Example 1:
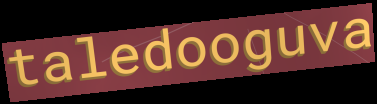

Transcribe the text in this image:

taledooguva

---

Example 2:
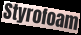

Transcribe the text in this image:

Styrofoam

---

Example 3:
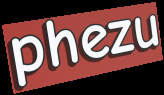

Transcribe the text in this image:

phezu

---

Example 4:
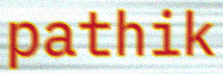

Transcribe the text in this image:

pathik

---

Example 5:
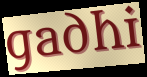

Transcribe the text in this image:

gadhi